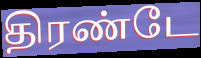
திரண்டே